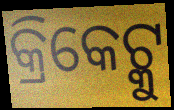
କ୍ରିକେଟ୍କୁ